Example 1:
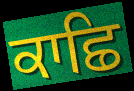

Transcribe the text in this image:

ਕਾਛਿ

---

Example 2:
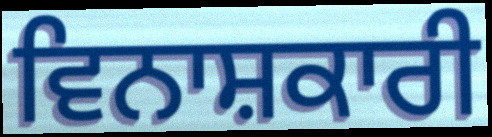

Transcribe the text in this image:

ਵਿਨਾਸ਼ਕਾਰੀ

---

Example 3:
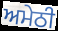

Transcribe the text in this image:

ਅਮੇਠੀ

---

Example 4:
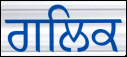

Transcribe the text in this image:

ਗਲਿਕ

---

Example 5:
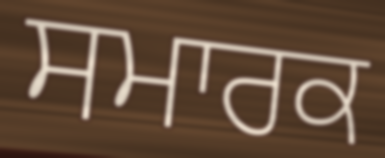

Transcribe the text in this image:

ਸਮਾਰਕ